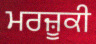
ਮਰਜ਼ੂਕੀ